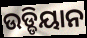
ଉଡ୍ଡିୟାନ